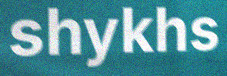
shykhs